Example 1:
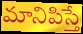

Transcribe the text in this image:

మానిపిస్తే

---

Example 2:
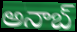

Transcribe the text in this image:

అనాబ్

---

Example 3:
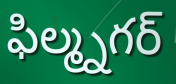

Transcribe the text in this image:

ఫిల్మ్నగర్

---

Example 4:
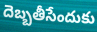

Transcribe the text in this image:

దెబ్బతీసేందుకు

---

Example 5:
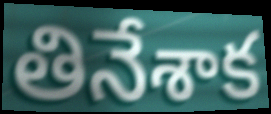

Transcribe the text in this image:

తినేశాక